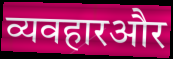
व्यवहारऔर